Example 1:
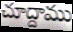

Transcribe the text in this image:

చూద్దాము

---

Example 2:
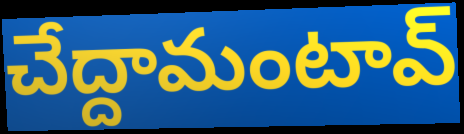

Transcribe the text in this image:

చేద్దామంటావ్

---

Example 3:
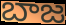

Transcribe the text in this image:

బాజ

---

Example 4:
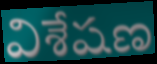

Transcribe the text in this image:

విశేషణ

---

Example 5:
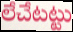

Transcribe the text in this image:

లేచేటట్టు